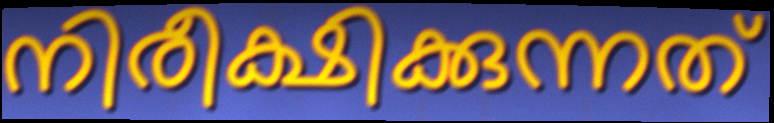
നിരീക്ഷിക്കുന്നത്